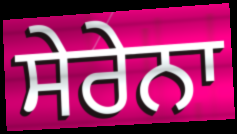
ਸੇਰੇਨਾ